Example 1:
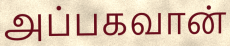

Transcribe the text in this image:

அப்பகவான்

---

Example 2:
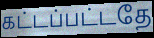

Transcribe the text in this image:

கட்டப்பட்டதே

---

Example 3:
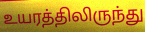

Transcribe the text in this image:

உயரத்திலிருந்து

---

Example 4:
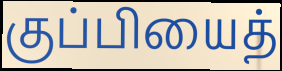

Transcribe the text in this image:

குப்பியைத்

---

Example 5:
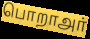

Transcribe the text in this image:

பொறாஅர்